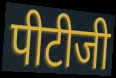
पीटीजी